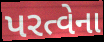
પરત્વેના